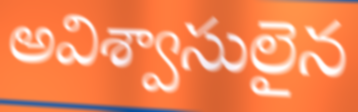
అవిశ్వాసులైన